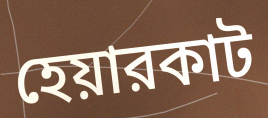
হেয়ারকাট